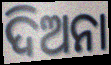
ଦିଅନା